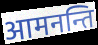
आमनन्ति